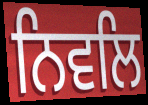
ਨਿਵਲਿ